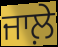
ਜਾਲ਼ੇ